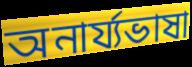
অনার্য্যভাষা